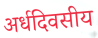
अर्धदिवसीय